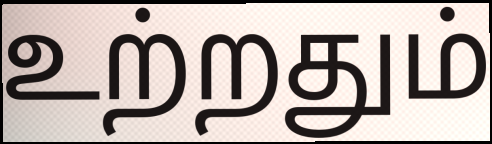
உற்றதும்